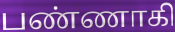
பண்ணாகி